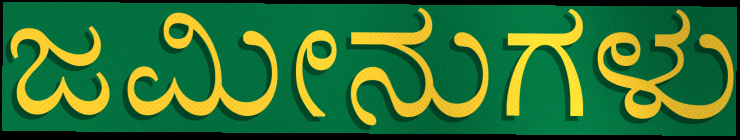
ಜಮೀನುಗಳು